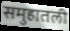
समुहातली